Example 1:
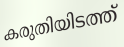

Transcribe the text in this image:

കരുതിയിടത്ത്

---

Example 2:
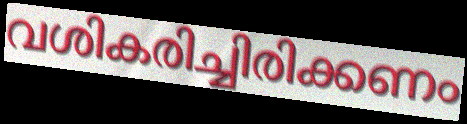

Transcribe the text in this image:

വശികരിച്ചിരിക്കണം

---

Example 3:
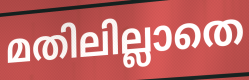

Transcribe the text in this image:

മതിലില്ലാതെ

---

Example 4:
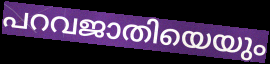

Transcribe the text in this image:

പറവജാതിയെയും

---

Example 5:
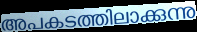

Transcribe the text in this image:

അപകടത്തിലാക്കുന്നു